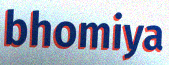
bhomiya